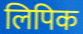
लिपिक